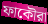
ফাকৌরা